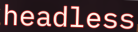
headless